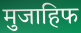
मुजाहिफ